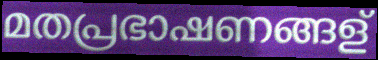
മതപ്രഭാഷണങ്ങള്